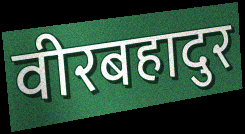
वीरबहादुर